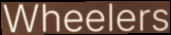
Wheelers